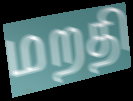
மறதி